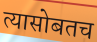
त्यासोबतच